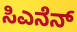
ಸಿಎನೆನ್